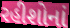
રહીશોનાં